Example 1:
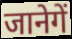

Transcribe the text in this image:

जानेगें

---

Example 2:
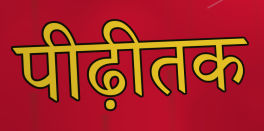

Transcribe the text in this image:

पीढ़ीतक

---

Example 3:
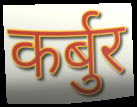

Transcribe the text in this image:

कर्बुर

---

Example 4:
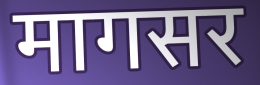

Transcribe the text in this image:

मागसर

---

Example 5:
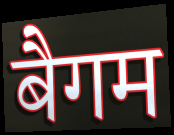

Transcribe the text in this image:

बैगम